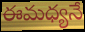
ఈమధ్యనే